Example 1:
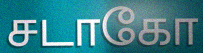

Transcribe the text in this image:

சடாகோ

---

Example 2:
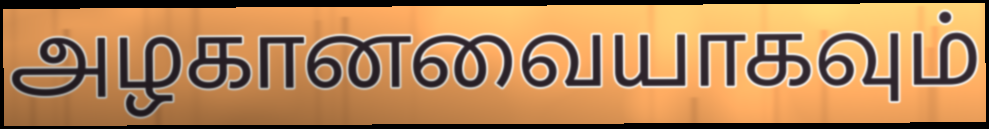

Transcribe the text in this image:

அழகானவையாகவும்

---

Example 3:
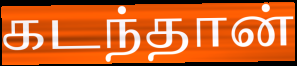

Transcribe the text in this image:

கடந்தான்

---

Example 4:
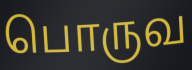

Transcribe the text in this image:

பொருவ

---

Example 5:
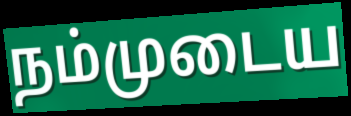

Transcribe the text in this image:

நம்முடைய